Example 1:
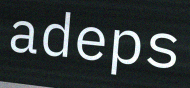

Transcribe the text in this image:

adeps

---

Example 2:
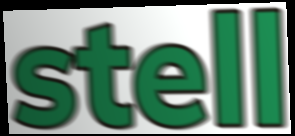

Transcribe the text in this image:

stell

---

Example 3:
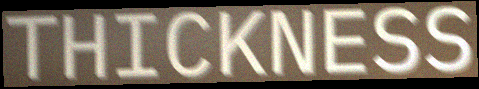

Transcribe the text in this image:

THICKNESS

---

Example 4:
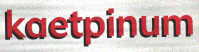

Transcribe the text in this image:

kaetpinum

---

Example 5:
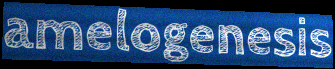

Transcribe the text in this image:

amelogenesis